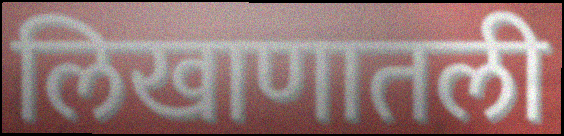
लिखाणातली